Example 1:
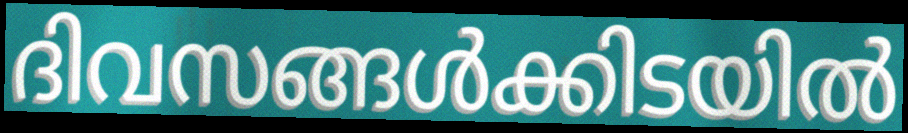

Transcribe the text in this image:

ദിവസങ്ങൾക്കിടയിൽ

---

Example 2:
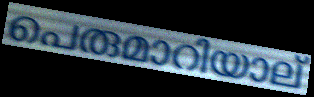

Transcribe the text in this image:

പെരുമാറിയാല്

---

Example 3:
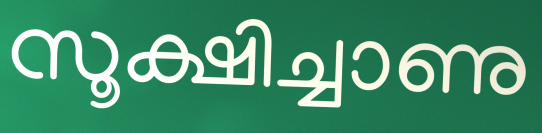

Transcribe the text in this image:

സൂക്ഷിച്ചാണു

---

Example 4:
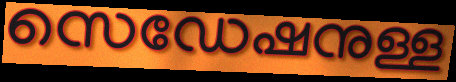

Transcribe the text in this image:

സെഡേഷനുള്ള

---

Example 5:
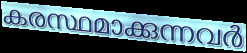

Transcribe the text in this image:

കരസ്ഥമാക്കുന്നവർ